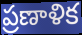
ప్రణాళిక